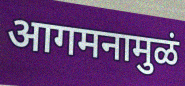
आगमनामुळं